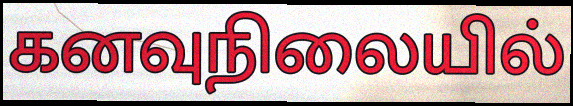
கனவுநிலையில்